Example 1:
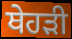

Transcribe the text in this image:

ਥੇਹੜੀ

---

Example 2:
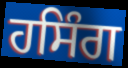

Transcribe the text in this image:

ਹਸਿੰਗ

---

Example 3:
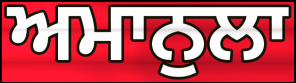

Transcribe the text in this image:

ਅਮਾਨੁਲਾ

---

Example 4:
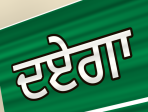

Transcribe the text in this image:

ਦਏਗਾ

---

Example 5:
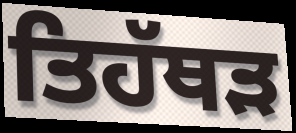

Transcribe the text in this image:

ਤਿਹੱਥੜ